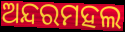
ଅନ୍ଦରମହଲ